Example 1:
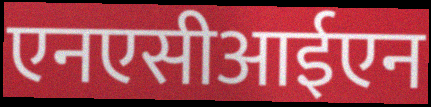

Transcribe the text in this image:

एनएसीआईएन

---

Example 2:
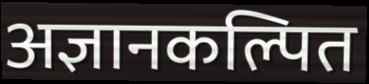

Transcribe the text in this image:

अज्ञानकल्पित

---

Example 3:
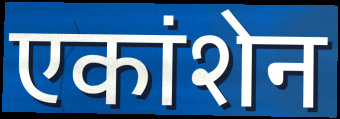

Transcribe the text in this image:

एकांशेन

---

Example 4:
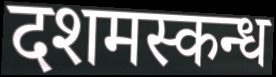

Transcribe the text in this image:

दशमस्कन्ध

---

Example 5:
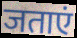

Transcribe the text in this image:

जताएं